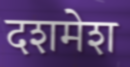
दशमेश